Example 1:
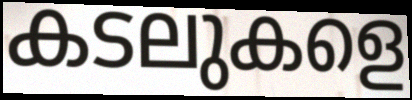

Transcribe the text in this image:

കടലുകളെ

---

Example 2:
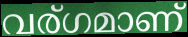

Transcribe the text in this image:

വര്ഗമാണ്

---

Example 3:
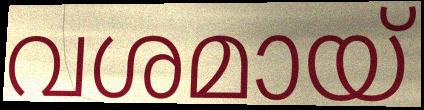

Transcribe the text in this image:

വശമായ്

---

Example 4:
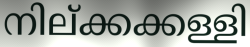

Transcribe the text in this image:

നില്ക്കക്കള്ളി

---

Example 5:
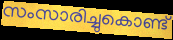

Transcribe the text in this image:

സംസാരിച്ചുകൊണ്ട്